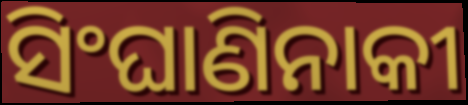
ସିଂଘାଣିନାକୀ